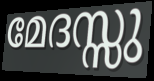
മേദസ്സു